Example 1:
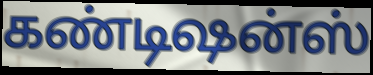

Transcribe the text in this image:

கண்டிஷன்ஸ்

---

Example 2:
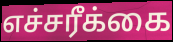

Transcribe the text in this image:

எச்சரீக்கை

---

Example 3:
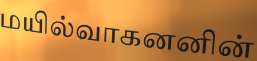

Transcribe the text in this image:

மயில்வாகனனின்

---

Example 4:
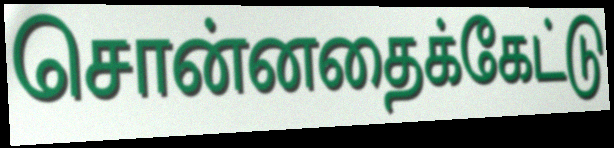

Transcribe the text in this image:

சொன்னதைக்கேட்டு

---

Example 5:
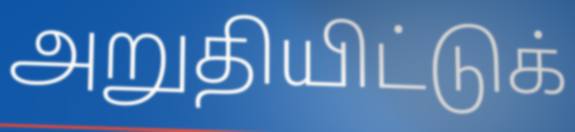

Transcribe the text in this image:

அறுதியிட்டுக்